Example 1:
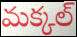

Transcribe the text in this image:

మక్కల్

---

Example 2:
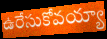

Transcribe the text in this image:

ఉరేసుకోవయ్యా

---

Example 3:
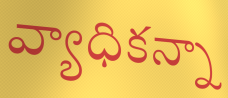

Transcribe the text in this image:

వ్యాధికన్నా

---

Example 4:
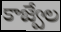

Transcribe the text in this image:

కాజ్వేల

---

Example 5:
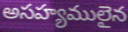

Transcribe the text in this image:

అసహ్యములైన